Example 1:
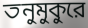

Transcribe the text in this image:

তনুমুকুরে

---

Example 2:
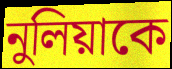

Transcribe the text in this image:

নুলিয়াকে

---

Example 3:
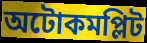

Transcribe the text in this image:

অটোকমপ্লিট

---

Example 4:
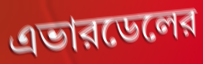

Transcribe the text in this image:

এভারডেলের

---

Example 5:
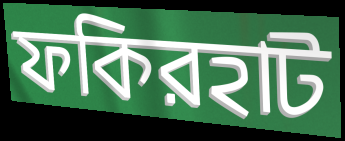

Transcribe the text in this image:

ফকিরহাট